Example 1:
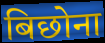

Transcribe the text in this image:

बिछोना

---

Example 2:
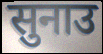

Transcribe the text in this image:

सुनाउ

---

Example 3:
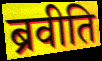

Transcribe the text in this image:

ब्रवीति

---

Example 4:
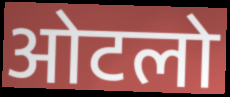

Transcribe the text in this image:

ओटलो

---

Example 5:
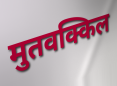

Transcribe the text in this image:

मुतवक्किल